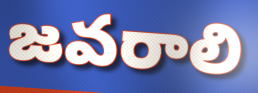
జవరాలి